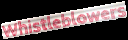
Whistleblowers